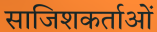
साजिशकर्ताओं